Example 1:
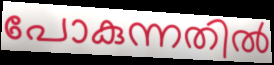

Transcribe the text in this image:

പോകുന്നതിൽ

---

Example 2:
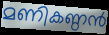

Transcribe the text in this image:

മണികണ്ഠൻ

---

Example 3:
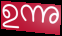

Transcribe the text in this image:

ഉന്നു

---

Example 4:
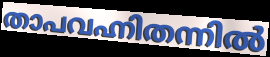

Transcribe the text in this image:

താപവഹ്നിതന്നിൽ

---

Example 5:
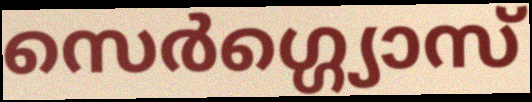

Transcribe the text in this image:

സെർഗ്ഗ്യൊസ്